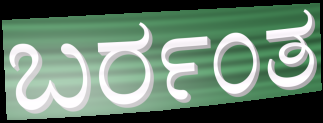
ಬರ್ರಂತ